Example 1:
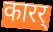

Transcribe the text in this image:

कारर्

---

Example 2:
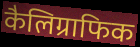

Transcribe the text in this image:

कैलिग्राफिक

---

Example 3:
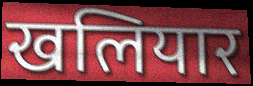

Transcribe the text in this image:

खलियार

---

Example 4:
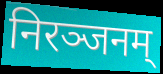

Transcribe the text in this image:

निरञ्जनम्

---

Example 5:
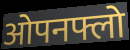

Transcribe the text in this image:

ओपनफ्लो